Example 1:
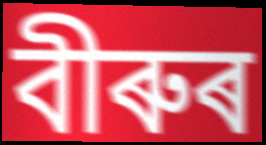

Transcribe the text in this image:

বীৰুৰ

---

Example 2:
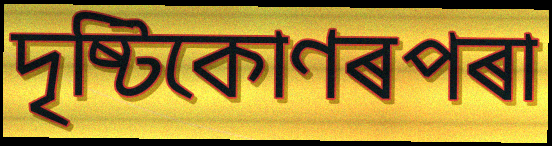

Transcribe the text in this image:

দৃষ্টিকোণৰপৰা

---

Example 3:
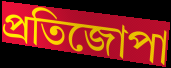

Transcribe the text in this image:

প্ৰতিজোপা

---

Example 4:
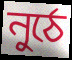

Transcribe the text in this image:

নুঠে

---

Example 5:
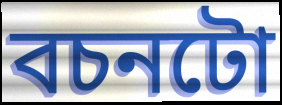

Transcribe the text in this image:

বচনটো